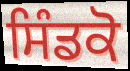
ਸਿੰਡਕੋ